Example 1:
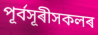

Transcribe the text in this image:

পূৰ্বসূৰীসকলৰ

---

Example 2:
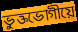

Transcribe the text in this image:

ভুক্তভোগীয়ে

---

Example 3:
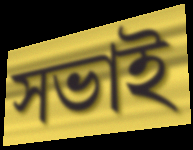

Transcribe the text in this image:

সভাই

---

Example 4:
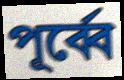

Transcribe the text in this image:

পূৰ্ব্বে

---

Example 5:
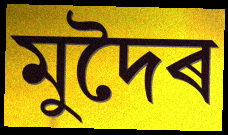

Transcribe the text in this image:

মুদৈৰ